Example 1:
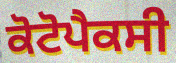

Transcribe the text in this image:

ਕੋਟੋਪੈਕਸੀ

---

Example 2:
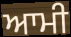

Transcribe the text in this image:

ਆਮੀ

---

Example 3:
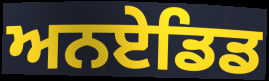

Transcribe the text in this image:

ਅਨਏਡਿਡ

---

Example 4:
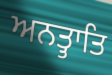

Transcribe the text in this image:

ਅਨਤ੍ਤਾਤਿ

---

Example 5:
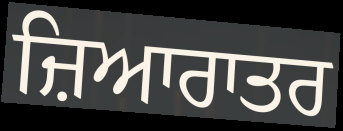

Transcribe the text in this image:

ਜ਼ਿਆਰਾਤਰ